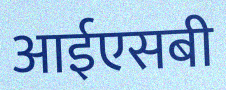
आईएसबी